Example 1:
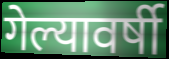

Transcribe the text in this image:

गेल्यावर्षी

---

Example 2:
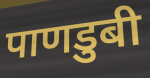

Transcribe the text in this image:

पाणडुबी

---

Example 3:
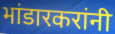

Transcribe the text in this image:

भांडारकरांनी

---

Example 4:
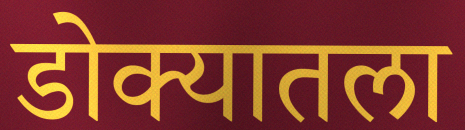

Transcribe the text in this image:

डोक्यातला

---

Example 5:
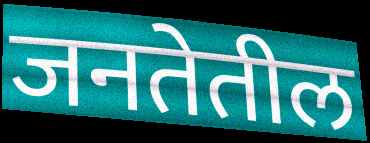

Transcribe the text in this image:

जनतेतील